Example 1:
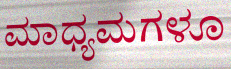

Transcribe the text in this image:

ಮಾಧ್ಯಮಗಳೂ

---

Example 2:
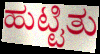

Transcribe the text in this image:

ಹುಟ್ಟಿತು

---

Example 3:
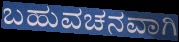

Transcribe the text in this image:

ಬಹುವಚನವಾಗಿ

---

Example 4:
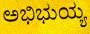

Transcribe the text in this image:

ಅಭಿಭುಯ್ಯ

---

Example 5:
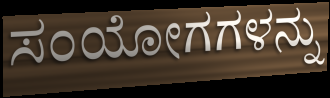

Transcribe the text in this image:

ಸಂಯೋಗಗಳನ್ನು